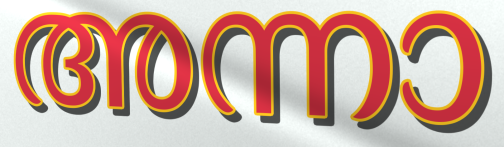
അന്നാ